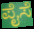
ಪೈಸೆ